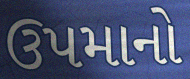
ઉપમાનો